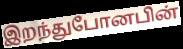
இறந்துபோனபின்